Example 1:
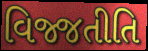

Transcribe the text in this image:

વિજ્જતીતિ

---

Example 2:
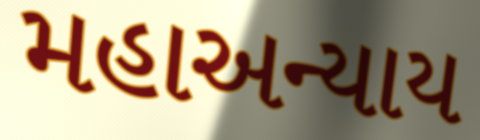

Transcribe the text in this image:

મહાઅન્યાય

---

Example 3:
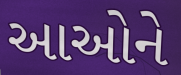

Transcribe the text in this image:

આઓને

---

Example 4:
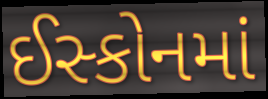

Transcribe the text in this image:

ઈસ્કોનમાં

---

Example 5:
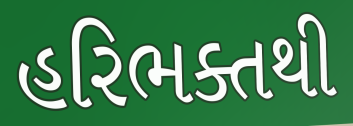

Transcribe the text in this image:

હરિભક્તથી